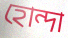
হোন্দা